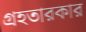
গ্রহতারকার